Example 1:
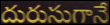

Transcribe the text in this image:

దురుసుగానే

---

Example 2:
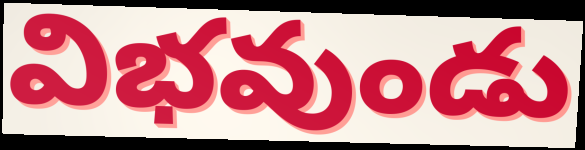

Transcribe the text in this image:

విభవుండు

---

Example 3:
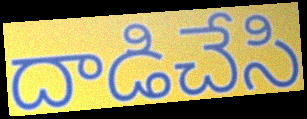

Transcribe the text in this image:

దాడిచేసి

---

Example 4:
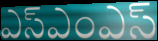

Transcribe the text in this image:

ఎస్ఎంఎస్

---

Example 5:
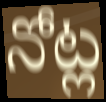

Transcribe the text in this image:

నోట్ల